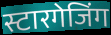
स्टारगेजिंग